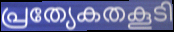
പ്രത്യേകതകൂടി